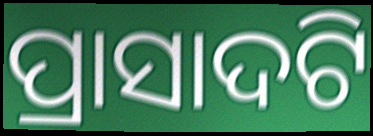
ପ୍ରାସାଦଟି